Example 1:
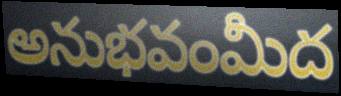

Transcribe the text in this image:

అనుభవంమీద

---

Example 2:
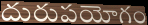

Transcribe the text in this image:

దురుపయోగం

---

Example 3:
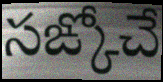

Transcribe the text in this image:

సఙ్కోచే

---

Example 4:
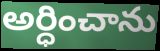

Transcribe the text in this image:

అర్ధించాను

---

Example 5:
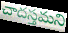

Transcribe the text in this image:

చాదస్తమని